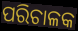
ପରିଚାଳକ